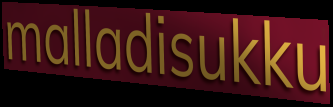
malladisukku